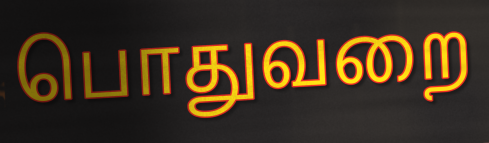
பொதுவறை